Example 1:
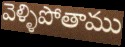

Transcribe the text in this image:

వెళ్ళిపోతాము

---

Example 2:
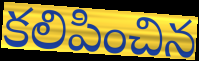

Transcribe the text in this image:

కలిపించిన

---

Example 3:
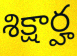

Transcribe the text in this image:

శిక్షార్హ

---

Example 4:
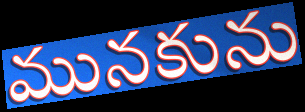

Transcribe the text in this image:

మునకును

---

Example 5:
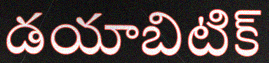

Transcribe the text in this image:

డయాబిటిక్